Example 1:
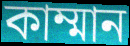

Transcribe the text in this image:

কাম্মান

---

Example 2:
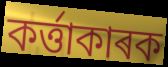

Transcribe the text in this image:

কৰ্ত্তাকাৰক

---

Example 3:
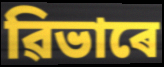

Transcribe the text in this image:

ৱিভাৰে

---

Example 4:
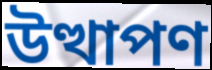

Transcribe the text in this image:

উত্থাপণ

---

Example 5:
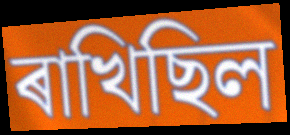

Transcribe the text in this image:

ৰাখিছিল